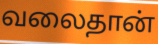
வலைதான்